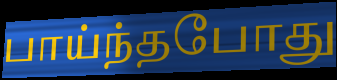
பாய்ந்தபோது